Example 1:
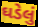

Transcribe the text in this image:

ઘડેલું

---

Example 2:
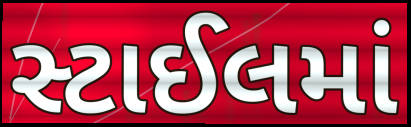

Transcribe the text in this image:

સ્ટાઈલમાં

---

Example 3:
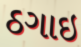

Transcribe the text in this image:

ઠગાઇ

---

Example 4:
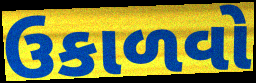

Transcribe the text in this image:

ઉકાળવો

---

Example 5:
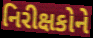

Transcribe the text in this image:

નિરીક્ષકોને